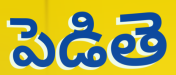
పెడితె